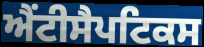
ਐਂਟੀਸੈਪਟਿਕਸ